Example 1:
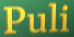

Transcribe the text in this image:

Puli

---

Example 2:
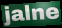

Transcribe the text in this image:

jalne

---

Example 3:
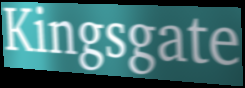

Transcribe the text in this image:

Kingsgate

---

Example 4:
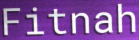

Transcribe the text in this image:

Fitnah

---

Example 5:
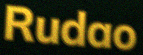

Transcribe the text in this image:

Rudao